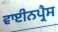
ਵਾਈਨਪ੍ਰੈਸ